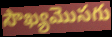
సౌఖ్యమొసగు